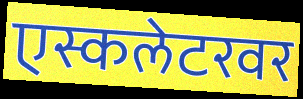
एस्कलेटरवर